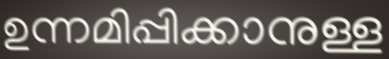
ഉന്നമിപ്പിക്കാനുള്ള